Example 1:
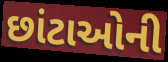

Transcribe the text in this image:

છાંટાઓની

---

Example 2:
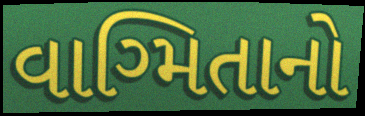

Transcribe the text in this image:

વાગ્મિતાનો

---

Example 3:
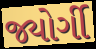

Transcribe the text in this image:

જ્યોર્ગી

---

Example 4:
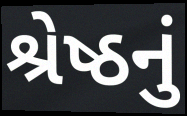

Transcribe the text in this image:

શ્રેષ્ઠનું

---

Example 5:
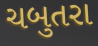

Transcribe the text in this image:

ચબુતરા